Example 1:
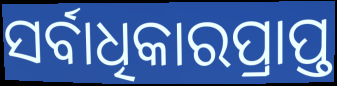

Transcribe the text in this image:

ସର୍ବାଧିକାରପ୍ରାପ୍ତ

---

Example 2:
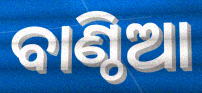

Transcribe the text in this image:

ବାଣ୍ଠିଆ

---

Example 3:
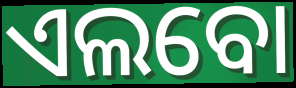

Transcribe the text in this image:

ଏଲବୋ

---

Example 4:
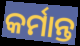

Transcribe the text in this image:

କର୍ମାନ୍ତ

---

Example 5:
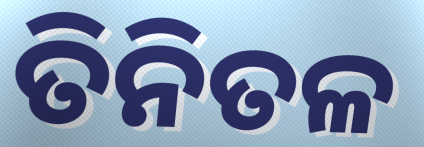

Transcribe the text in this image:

ତିନିତଳ